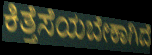
ಕಿತ್ತೆಸೆಯಬೇಕಾಗಿದೆ